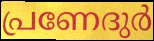
പ്രണേദുർ